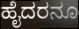
ಹೈದರನೂ